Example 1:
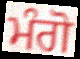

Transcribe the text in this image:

ਮੰਗੋ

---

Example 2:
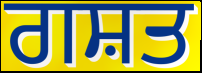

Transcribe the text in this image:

ਗਸ਼ਤ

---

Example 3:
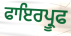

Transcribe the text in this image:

ਫਾਇਰਪ੍ਰੂਫ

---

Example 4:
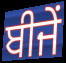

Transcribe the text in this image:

ਬੀਜੇਂ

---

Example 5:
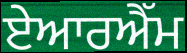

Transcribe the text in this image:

ਏਆਰਐੱਮ